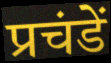
प्रचंडें